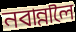
নবান্নালৈ